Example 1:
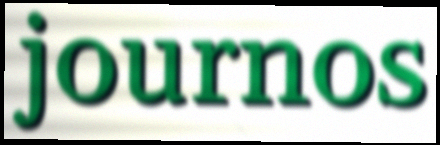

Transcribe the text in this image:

journos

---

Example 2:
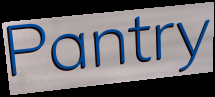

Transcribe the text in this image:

Pantry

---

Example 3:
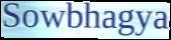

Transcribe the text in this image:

Sowbhagya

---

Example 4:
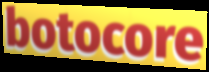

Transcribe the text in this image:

botocore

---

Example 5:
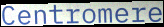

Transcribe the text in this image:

Centromere